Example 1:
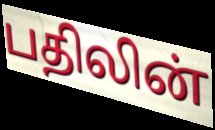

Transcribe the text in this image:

பதிலின்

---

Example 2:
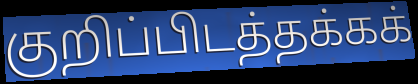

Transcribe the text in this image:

குறிப்பிடத்தக்கக்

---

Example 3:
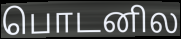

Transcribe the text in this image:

பொடனில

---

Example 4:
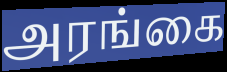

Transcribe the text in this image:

அரங்கை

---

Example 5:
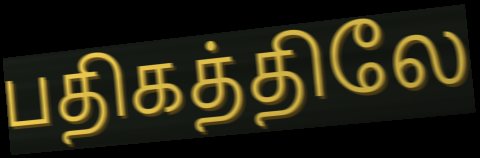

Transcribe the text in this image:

பதிகத்திலே